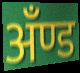
अँण्ड